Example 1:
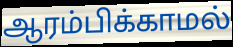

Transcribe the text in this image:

ஆரம்பிக்காமல்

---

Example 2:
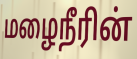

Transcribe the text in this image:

மழைநீரின்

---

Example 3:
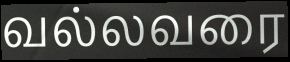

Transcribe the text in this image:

வல்லவரை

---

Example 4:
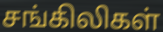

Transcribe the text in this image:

சங்கிலிகள்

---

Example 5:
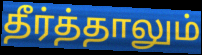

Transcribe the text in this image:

தீர்த்தாலும்